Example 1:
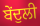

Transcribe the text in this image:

ਬੇਂਦੁਲੀ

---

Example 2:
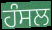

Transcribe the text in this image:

ਹੰਸਲ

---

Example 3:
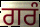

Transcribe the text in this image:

ਗਰੰ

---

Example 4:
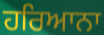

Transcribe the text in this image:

ਹਰਿਆਨਾ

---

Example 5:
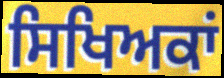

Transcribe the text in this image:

ਸਿਖਿਅਕਾਂ